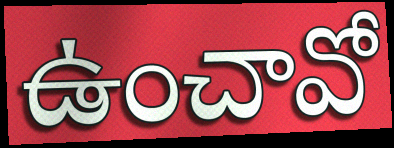
ఉంచావో